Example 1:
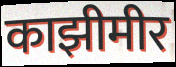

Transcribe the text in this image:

काझीमीर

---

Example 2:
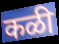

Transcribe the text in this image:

कळी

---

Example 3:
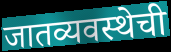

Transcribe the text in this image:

जातव्यवस्थेची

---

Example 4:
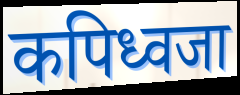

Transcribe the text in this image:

कपिध्वजा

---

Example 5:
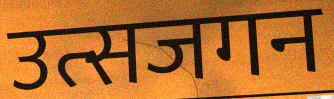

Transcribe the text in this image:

उत्सजगन